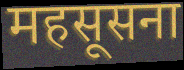
महसूसना